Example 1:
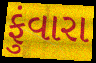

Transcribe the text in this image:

ફુંવારા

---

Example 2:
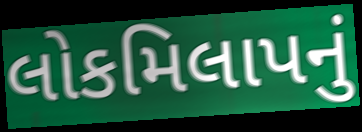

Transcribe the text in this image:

લોકમિલાપનું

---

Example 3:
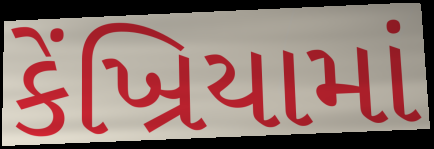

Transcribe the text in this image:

કેંખ્રિયામાં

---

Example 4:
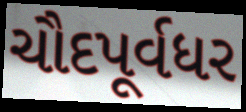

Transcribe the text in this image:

ચૌદપૂર્વધર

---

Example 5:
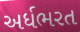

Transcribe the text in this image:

અર્ધભરત